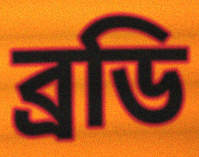
ব্রডি